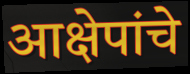
आक्षेपांचे